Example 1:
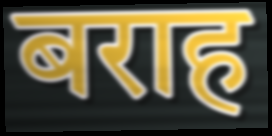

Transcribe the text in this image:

बराह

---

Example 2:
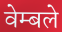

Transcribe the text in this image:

वेम्बले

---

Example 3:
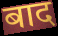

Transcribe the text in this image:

बाद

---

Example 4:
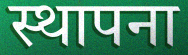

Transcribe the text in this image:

स्थापना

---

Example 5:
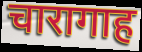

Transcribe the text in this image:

चारागाह